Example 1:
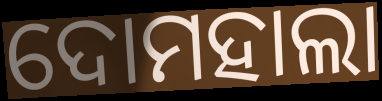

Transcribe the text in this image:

ଦୋମହାଲା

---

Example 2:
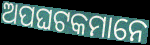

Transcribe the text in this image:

ଅପଘଟକମାନେ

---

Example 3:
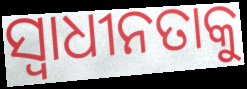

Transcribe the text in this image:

ସ୍ଵାଧୀନତାକୁ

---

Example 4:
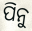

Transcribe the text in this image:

ପିନୁ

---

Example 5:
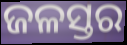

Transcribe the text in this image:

ଜଳସ୍ତର